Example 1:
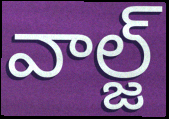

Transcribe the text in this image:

వాల్జ్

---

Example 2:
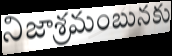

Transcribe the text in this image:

నిజాశ్రమంబునకు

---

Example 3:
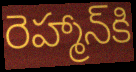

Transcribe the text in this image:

రెహ్మాన్‌కి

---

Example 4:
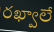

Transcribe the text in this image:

రఖ్వాలే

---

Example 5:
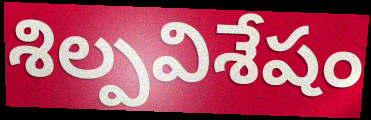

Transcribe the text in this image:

శిల్పవిశేషం